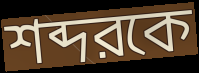
শব্দরকে